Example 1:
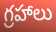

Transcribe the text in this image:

గ్రహాలు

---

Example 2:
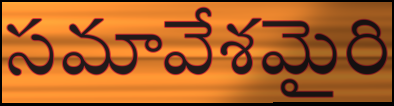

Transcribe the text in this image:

సమావేశమైరి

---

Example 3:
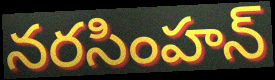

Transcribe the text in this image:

నరసింహన్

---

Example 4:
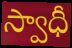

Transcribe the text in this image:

స్వాధీ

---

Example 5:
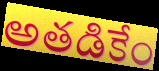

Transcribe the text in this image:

అతడికేం